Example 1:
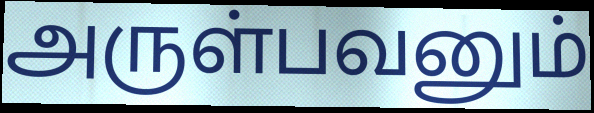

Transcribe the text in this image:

அருள்பவனும்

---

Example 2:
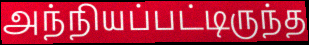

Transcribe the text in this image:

அந்நியப்பட்டிருந்த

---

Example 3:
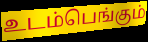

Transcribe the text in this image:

உடம்பெங்கும்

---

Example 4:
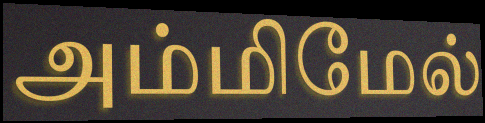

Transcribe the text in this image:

அம்மிமேல்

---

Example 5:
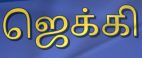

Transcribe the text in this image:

ஜெக்கி